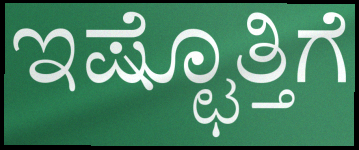
ಇಷ್ಟೊತ್ತಿಗೆ